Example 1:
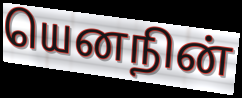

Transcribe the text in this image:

யெனநின்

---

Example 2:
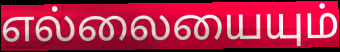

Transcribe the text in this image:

எல்லையையும்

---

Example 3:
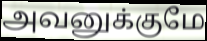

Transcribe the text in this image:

அவனுக்குமே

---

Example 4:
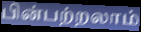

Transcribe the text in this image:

பின்பற்றலாம்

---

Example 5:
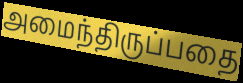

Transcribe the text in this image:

அமைந்திருப்பதை